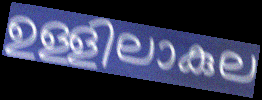
ഉള്ളിലാകുല